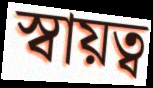
স্বায়ত্ব